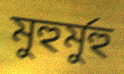
মুহুর্মুহু